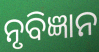
ନୃବିଜ୍ଞାନ